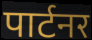
पार्टनर